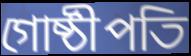
গোষ্ঠীপতি